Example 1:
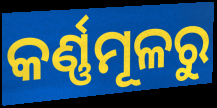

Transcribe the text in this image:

କର୍ଣ୍ଣମୂଳରୁ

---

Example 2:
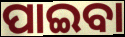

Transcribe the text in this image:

ପାଇବା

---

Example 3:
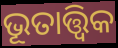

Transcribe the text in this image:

ଭୂତାତ୍ତ୍ୱିକ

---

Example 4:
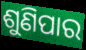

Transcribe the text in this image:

ଶୁଣିପାର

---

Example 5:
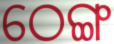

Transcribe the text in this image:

ଠେଙ୍ଗ